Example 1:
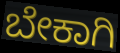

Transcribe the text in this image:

ಬೇಕಾಗಿ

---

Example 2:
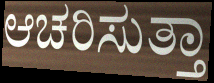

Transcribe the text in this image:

ಆಚರಿಸುತ್ತಾ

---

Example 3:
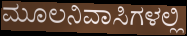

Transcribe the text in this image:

ಮೂಲನಿವಾಸಿಗಳಲ್ಲಿ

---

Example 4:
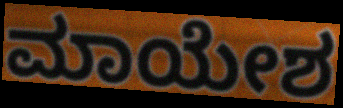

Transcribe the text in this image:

ಮಾಯೇಶ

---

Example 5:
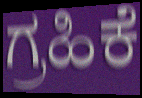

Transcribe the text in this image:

ಗ್ರಹಿಕೆ